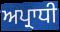
ਅਪ੍ਰਾਧੀ